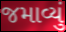
જમાવ્યું